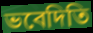
ভবেদিতি